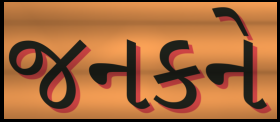
જનકને